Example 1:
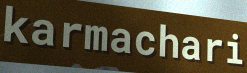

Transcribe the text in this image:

karmachari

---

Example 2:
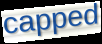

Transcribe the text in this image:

capped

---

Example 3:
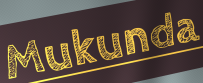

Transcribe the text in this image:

Mukunda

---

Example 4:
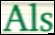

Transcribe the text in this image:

Als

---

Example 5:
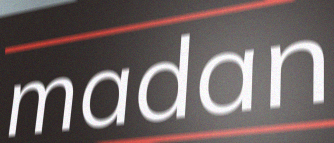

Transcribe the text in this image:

madan